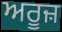
ਅਰੂਜ਼